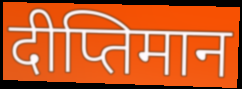
दीप्तिमान